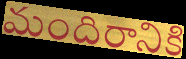
మందిరానికి